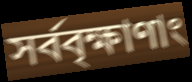
সর্ববৃক্ষাণাং